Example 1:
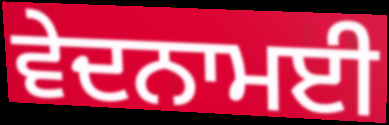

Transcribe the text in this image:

ਵੇਦਨਾਮਈ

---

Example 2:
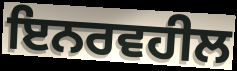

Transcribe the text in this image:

ਇਨਰਵਹੀਲ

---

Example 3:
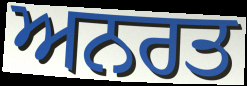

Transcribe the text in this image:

ਅਨਰਤ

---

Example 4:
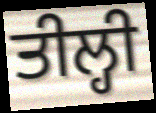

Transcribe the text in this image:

ਤੀਲ੍ਹੀ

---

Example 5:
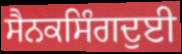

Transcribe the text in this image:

ਸੈਨਕਸਿੰਗਦੁਈ